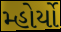
મ્હોર્યો